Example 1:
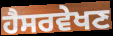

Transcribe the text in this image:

ਹੈਸਰਵੇਖਣ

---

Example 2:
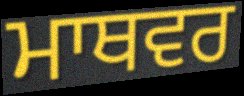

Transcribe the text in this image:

ਮਾਥਵਰ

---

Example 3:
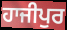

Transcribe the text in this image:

ਹਾਜੀਪੁਰ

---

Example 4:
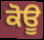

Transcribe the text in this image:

ਕੋਊ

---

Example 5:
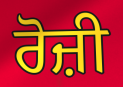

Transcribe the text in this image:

ਰੋਜ਼ੀ